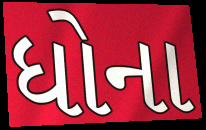
ધોના